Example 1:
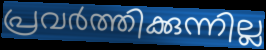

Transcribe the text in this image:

പ്രവർത്തിക്കുന്നില്ല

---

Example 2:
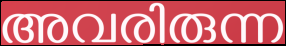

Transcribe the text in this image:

അവരിരുന്ന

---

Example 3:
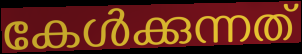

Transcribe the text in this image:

കേൾക്കുന്നത്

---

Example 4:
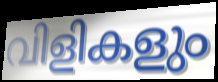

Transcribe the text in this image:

വിളികളും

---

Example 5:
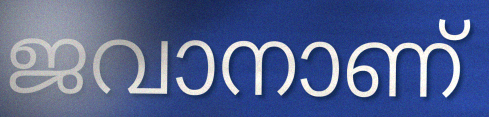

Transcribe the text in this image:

ജവാനാണ്